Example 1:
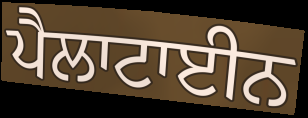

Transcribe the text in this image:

ਪੈਲਾਟਾਈਨ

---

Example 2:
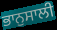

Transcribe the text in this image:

ਭਾਨੁਸਾਲੀ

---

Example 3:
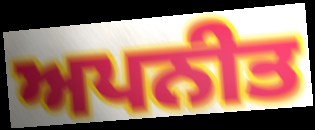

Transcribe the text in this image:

ਅਪਨੀਤ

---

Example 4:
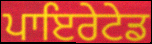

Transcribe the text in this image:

ਪਾਇਰੇਟੇਡ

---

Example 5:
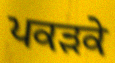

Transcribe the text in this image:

ਪਕੜਕੇ